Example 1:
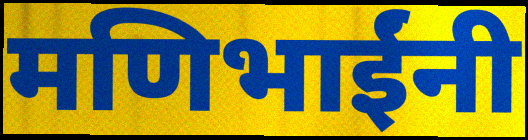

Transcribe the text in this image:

मणिभाईंनी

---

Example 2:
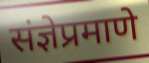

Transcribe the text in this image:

संज्ञेप्रमाणे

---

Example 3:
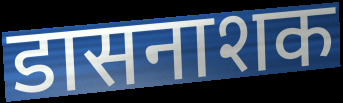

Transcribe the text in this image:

डासनाशक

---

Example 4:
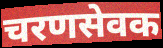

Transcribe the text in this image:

चरणसेवक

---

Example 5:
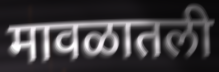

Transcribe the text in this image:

मावळातली